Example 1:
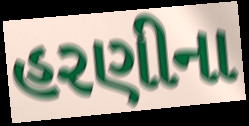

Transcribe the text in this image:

હરણીના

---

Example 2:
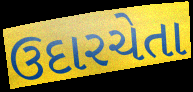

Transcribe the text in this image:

ઉદારચેતા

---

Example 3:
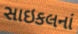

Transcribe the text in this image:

સાઇકલનાં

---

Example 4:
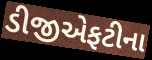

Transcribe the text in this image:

ડીજીએફટીના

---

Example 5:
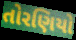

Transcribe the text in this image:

તોરણિયો